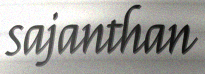
sajanthan